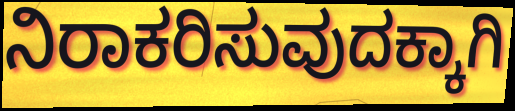
ನಿರಾಕರಿಸುವುದಕ್ಕಾಗಿ